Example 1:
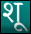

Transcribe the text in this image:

शू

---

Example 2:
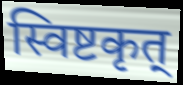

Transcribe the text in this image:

स्विष्टकृत्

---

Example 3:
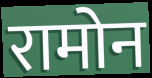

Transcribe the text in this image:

रामोन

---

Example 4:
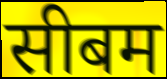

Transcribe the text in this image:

सीबम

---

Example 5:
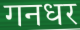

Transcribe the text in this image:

गनधर